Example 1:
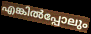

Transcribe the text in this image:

എങ്കിൽപ്പോലും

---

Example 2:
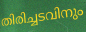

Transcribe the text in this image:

തിരിച്ചടവിനും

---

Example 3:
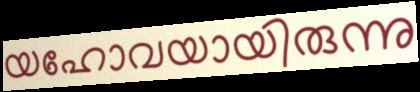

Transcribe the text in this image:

യഹോവയായിരുന്നു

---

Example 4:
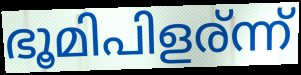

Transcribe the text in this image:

ഭൂമിപിളര്ന്ന്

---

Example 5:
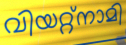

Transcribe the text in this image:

വിയറ്റ്നാമി